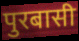
पुरबासी